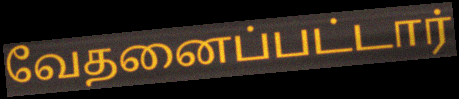
வேதனைப்பட்டார்